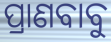
ପ୍ରାଣବାବୁ